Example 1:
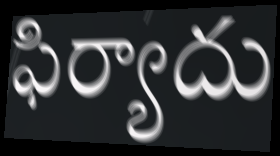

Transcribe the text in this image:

ఫిర్యాదు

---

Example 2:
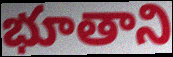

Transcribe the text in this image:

భూతాని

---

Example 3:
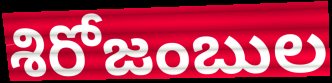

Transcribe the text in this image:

శిరోజంబుల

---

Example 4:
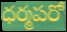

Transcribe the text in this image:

ధర్మపరో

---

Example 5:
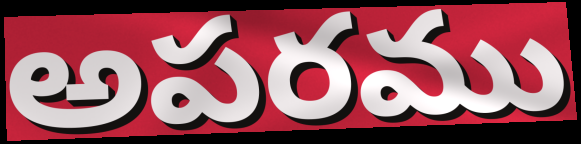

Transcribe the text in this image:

అపరము